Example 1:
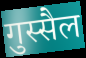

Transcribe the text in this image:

गुस्सैल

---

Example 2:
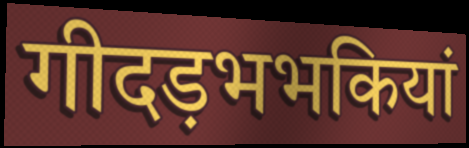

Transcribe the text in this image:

गीदड़भभकियां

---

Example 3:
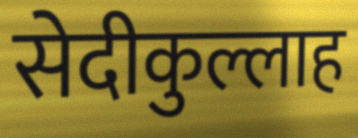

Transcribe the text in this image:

सेदीकुल्लाह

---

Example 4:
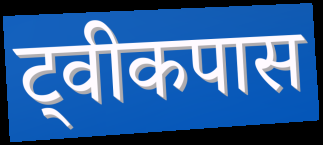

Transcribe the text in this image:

ट्वीकपास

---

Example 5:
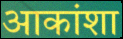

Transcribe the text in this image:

आकांशा